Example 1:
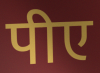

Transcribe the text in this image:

पीए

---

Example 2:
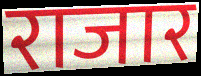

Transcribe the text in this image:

राजार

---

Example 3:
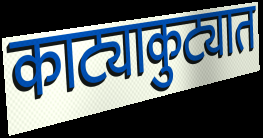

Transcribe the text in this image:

काट्याकुट्यात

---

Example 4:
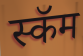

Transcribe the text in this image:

स्कॅम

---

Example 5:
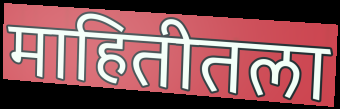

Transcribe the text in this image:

माहितीतला